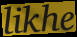
likhe